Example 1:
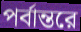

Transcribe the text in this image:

পর্বান্তরে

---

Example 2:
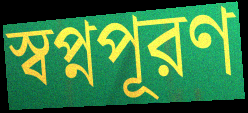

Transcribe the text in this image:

স্বপ্নপূরণ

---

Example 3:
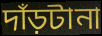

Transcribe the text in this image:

দাঁড়টানা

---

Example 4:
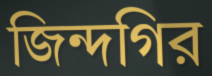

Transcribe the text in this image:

জিন্দগির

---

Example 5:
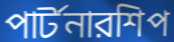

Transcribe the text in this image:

পার্টনারশিপ